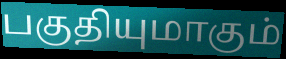
பகுதியுமாகும்